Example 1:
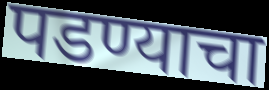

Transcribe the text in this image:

पडण्याचा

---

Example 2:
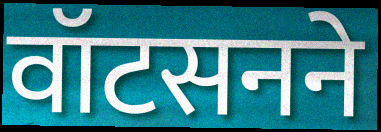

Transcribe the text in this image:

वॉटसनने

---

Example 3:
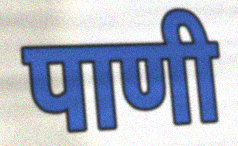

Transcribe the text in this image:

पाणी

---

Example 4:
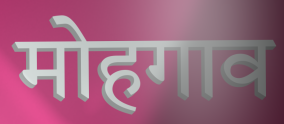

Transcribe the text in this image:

मोहगाव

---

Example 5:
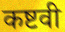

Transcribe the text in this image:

कष्टवी